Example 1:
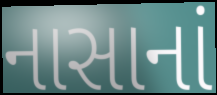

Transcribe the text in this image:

નાસાનાં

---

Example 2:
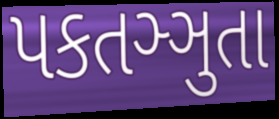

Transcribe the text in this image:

પકતઞ્ઞુતા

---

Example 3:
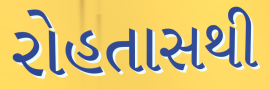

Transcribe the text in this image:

રોહતાસથી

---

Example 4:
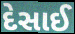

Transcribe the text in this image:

દેસાઈ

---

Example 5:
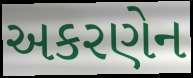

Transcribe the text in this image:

અકરણેન